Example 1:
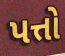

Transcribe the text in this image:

પત્તો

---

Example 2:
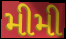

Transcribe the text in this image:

મીમી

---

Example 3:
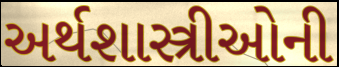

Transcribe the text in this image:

અર્થશાસ્ત્રીઓની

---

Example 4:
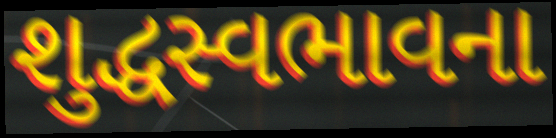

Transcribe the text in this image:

શુદ્ધસ્વભાવના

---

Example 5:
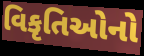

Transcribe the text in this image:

વિકૃતિઓનો